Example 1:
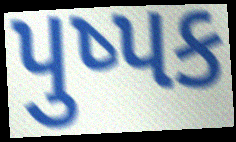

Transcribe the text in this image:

પુષ્પક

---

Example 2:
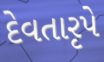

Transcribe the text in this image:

દેવતારૃપે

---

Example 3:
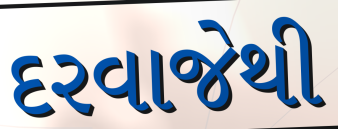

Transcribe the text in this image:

દરવાજેથી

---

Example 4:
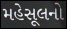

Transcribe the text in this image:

મહેસૂલનો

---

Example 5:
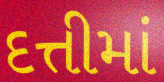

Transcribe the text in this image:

દત્તીમાં